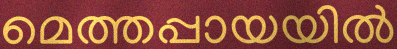
മെത്തപ്പായയിൽ